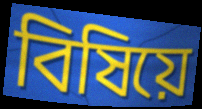
বিষিয়ে